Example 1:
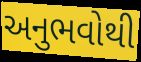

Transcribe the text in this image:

અનુભવોથી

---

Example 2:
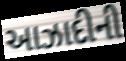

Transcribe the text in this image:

આઝાદીની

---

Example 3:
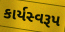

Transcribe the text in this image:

કાર્યસ્વરૂપ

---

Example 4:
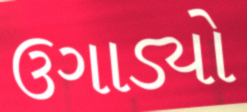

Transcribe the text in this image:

ઉગાડ્યો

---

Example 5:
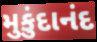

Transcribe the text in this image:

મુકુંદાનંદ